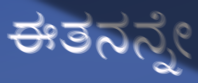
ಈತನನ್ನೇ